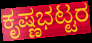
ಕೃಷ್ಣಭಟ್ಟರ